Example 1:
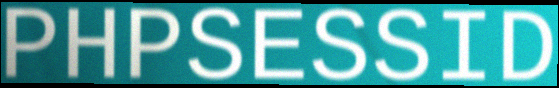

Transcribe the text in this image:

PHPSESSID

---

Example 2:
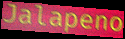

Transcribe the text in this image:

Jalapeno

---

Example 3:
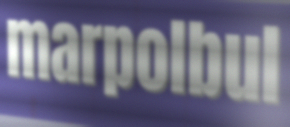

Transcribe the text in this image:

marpolbul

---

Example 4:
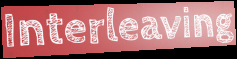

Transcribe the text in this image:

Interleaving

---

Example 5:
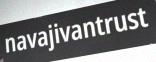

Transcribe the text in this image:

navajivantrust